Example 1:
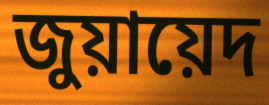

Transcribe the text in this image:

জুয়ায়েদ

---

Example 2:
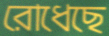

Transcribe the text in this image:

রোধেছে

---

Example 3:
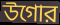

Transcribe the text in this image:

উগোর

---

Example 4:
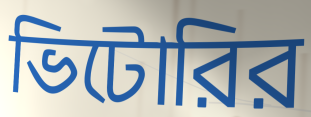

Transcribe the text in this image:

ভিটোরির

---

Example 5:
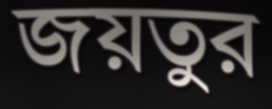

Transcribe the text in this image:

জয়তুর